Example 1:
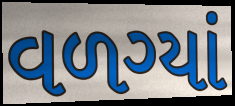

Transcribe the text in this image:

વળગ્યાં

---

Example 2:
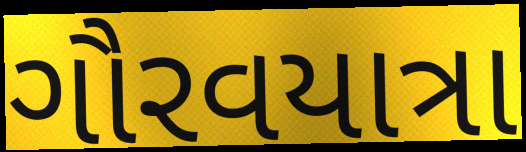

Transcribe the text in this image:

ગૌરવયાત્રા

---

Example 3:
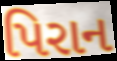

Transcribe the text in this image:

પિરાન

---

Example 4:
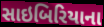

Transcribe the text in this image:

સાઇબિરિયાના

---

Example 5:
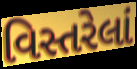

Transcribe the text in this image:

વિસ્તરેલાં